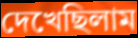
দেখেছিলাম